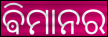
ଵିମାନର